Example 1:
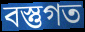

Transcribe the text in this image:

বস্তুগত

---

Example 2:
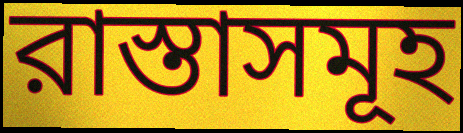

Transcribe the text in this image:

রাস্তাসমূহ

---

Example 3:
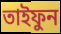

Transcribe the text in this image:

তাইফুন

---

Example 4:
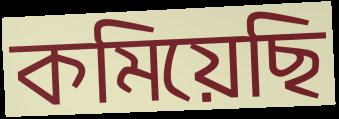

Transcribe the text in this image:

কমিয়েছি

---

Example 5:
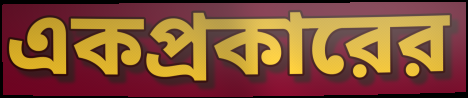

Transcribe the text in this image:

একপ্রকারের